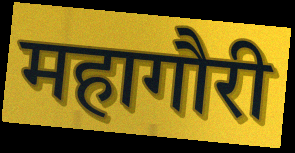
महागौरी